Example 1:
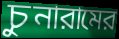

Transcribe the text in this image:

চুনারামের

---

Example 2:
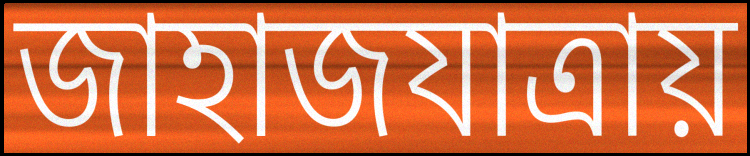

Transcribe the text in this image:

জাহাজযাত্রায়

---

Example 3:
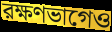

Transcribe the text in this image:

রক্ষণভাগেও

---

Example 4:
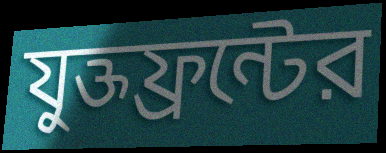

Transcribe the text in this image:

যুক্তফ্রন্টের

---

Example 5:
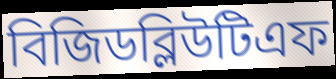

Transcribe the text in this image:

বিজিডব্লিউটিএফ